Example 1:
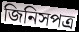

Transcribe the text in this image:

জিনিসপত্র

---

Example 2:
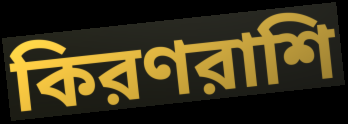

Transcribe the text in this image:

কিরণরাশি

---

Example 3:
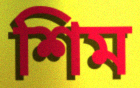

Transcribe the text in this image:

শিম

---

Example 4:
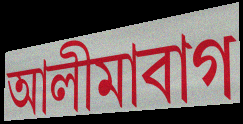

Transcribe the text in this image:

আলীমাবাগ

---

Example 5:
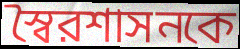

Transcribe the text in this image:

স্বৈরশাসনকে